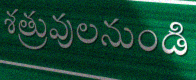
శత్రువులనుండి